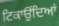
ਟਿਕਾਉਂਦਿਆਂ